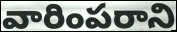
వారింపరాని